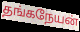
தங்கநேயன்